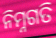
ନିମ୍ନଗତି